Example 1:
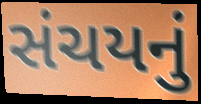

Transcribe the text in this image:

સંચયનું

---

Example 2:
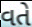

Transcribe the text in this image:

વતે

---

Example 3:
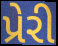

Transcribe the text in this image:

પ્રેરી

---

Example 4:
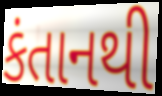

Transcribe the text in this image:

કંતાનથી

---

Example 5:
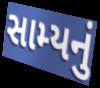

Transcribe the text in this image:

સામ્યનું